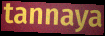
tannaya